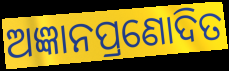
ଅଜ୍ଞାନପ୍ରଣୋଦିତ